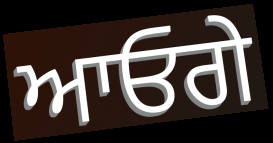
ਆਓਗੇ